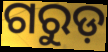
ଗରୁଡ଼